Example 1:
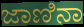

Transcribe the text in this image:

ಜಾಣಿನಾ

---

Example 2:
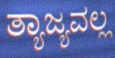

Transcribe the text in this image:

ತ್ಯಾಜ್ಯವಲ್ಲ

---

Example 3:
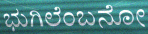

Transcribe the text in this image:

ಭುಗಿಲೆಂಬನೋ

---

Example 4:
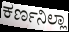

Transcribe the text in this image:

ಕರ್ಣನಿಲ್ಲಾ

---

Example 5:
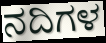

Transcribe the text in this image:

ನದಿಗಳ